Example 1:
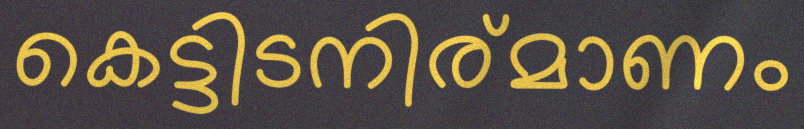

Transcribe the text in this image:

കെട്ടിടനിര്മാണം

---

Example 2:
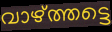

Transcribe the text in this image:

വാഴ്ത്തട്ടെ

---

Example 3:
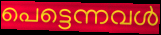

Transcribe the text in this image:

പെട്ടെന്നവൾ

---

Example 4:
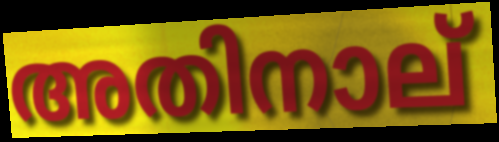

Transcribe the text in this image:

അതിനാല്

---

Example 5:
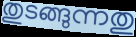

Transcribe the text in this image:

തുടങ്ങുന്നതു